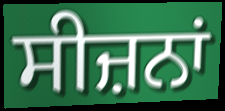
ਸੀਜ਼ਨਾਂ